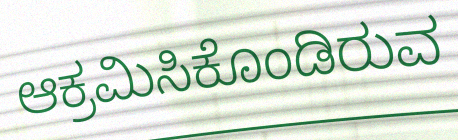
ಆಕ್ರಮಿಸಿಕೊಂಡಿರುವ